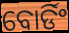
ବୋର୍ଡିଂ